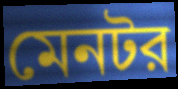
মেনটর